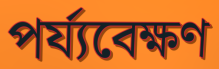
পৰ্য্যবেক্ষণ